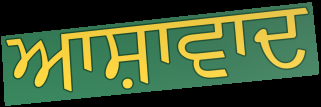
ਆਸ਼ਾਵਾਦ